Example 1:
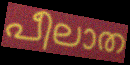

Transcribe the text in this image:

പീലാത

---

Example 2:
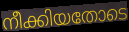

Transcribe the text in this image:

നീക്കിയതോടെ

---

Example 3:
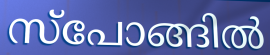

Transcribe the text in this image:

സ്പോങ്ങിൽ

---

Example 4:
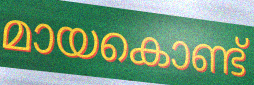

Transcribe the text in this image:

മായകൊണ്ട്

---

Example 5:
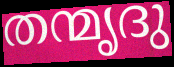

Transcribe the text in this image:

തന്മൃദു